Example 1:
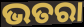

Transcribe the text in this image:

ଭତରା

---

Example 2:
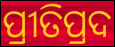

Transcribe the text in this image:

ପ୍ରୀତିପ୍ରଦ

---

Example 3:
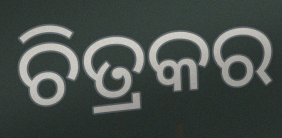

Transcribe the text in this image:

ଚିତ୍ରକର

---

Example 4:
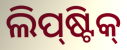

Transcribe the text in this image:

ଲିପ୍‌ଷ୍ଟିକ୍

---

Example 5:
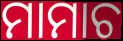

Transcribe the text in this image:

ମାମାଚ